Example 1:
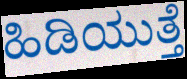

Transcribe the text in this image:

ಹಿಡಿಯುತ್ತೆ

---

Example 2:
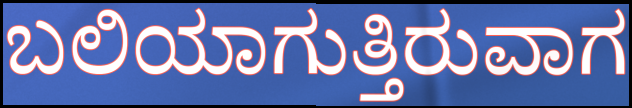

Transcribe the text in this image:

ಬಲಿಯಾಗುತ್ತಿರುವಾಗ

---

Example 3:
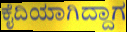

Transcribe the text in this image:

ಕೈದಿಯಾಗಿದ್ದಾಗ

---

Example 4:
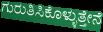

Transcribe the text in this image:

ಗುರುತಿಸಿಕೊಳ್ಳುತ್ತೇನೆ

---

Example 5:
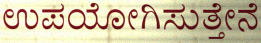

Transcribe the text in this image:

ಉಪಯೋಗಿಸುತ್ತೇನೆ